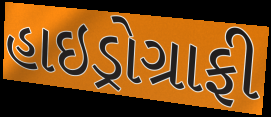
હાઇડ્રોગ્રાફી